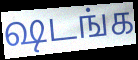
ஷடங்க